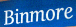
Binmore